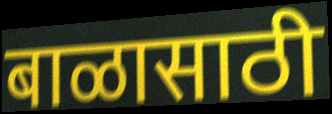
बाळासाठी